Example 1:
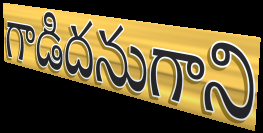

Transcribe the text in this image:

గాడిదనుగాని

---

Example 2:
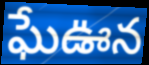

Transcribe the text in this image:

ఘేఊన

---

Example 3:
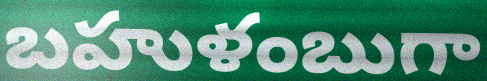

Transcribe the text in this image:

బహుళంబుగా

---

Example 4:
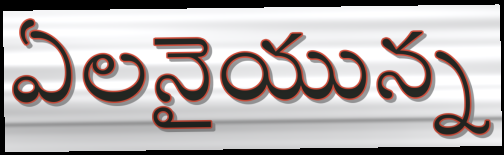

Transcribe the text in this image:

ఏలనైయున్న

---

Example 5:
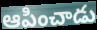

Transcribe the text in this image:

ఆపించాడు